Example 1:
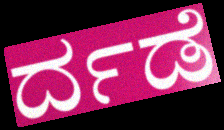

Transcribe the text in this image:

ರ್ದಡೆ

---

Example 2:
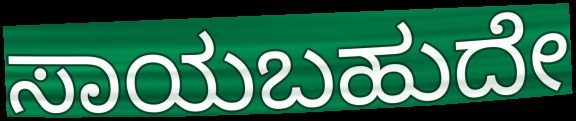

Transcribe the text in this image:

ಸಾಯಬಹುದೇ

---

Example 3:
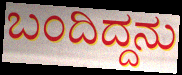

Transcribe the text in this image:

ಬಂದಿದ್ದನು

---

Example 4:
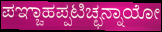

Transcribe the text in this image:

ಪಞ್ಚಾಹಪ್ಪಟಿಚ್ಛನ್ನಾಯೋ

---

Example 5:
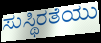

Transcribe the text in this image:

ಸುಸ್ಥಿರತೆಯು